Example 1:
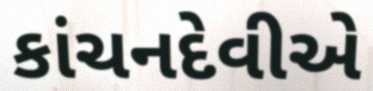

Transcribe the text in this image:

કાંચનદેવીએ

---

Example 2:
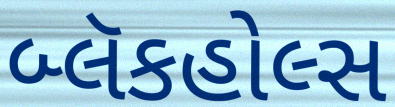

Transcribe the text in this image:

બ્લૅકહોલ્સ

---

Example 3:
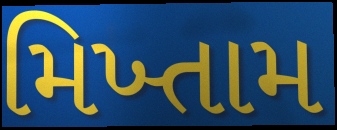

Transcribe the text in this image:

મિખ્તામ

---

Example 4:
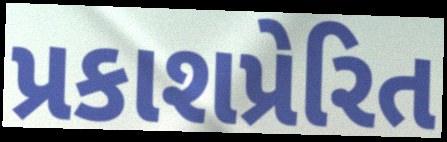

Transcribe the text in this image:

પ્રકાશપ્રેરિત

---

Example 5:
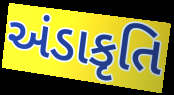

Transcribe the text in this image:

અંડાકૃતિ